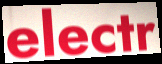
electr